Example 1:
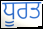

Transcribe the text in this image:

ਧੂਰਤ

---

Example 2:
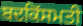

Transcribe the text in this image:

ਬਦਕਿੱਸਮਤੀ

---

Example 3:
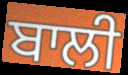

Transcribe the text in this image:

ਬਾਲੀ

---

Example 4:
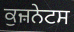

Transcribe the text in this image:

ਕੁਜ਼ਨੇਟਸ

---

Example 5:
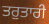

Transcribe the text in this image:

ਤਰੁਤਾਰੀ